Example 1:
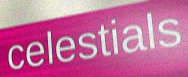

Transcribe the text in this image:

celestials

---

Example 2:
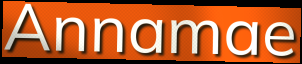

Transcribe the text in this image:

Annamae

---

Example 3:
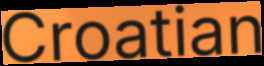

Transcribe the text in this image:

Croatian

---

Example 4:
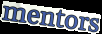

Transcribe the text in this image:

mentors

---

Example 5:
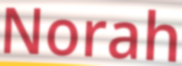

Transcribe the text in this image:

Norah